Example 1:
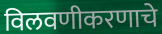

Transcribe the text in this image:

विलवणीकरणाचे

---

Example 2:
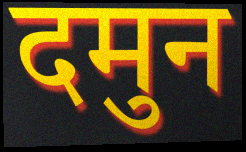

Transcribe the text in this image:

दमुन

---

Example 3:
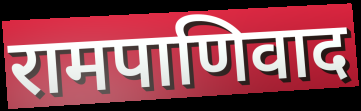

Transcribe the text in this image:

रामपाणिवाद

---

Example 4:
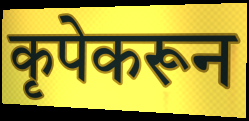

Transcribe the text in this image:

कृपेकरून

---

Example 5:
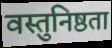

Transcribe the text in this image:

वस्तुनिष्ठता